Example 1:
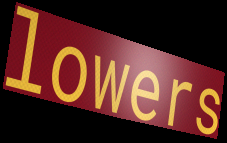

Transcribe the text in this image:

lowers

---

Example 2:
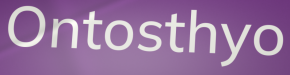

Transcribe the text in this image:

Ontosthyo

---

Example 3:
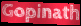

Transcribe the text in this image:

Gopinath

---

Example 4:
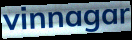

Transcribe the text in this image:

vinnagar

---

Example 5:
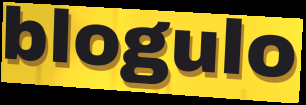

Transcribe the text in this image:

blogulo